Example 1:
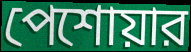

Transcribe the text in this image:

পেশোয়ার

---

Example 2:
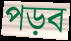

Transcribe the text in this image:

পড়ব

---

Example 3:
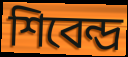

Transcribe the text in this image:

শিবেন্দ্র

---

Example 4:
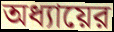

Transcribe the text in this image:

অধ্যায়ের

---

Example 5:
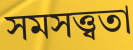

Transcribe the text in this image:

সমসত্ত্বতা